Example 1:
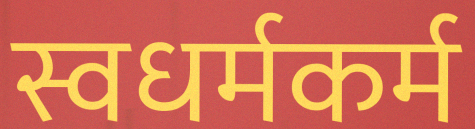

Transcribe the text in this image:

स्वधर्मकर्म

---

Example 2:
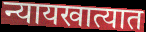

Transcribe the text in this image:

न्यायखात्यात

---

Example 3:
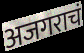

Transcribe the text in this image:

अजगराचं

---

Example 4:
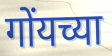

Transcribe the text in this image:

गोंयच्या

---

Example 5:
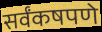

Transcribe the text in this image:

सर्वंकषपणे